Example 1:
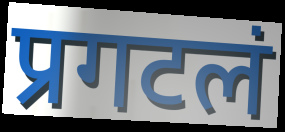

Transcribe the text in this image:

प्रगटलं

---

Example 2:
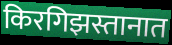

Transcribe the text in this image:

किरगिझस्तानात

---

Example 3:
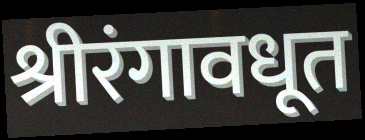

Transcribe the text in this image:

श्रीरंगावधूत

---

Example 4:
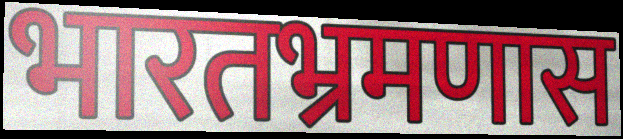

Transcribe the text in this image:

भारतभ्रमणास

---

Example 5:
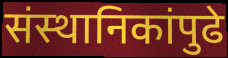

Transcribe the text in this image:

संस्थानिकांपुढे